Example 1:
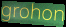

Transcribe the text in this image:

grohon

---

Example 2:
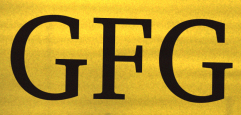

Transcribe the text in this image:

GFG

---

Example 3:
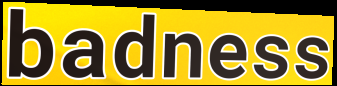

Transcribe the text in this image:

badness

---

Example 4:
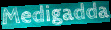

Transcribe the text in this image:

Medigadda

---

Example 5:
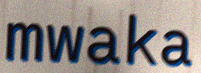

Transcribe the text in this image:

mwaka